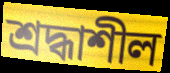
শ্ৰদ্ধাশীল